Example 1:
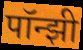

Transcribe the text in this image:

पॉन्झी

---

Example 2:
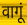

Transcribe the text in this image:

वागूं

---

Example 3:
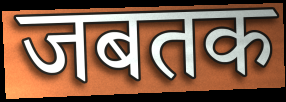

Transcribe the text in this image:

जबतक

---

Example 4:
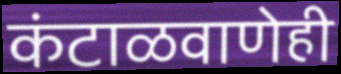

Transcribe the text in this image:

कंटाळवाणेही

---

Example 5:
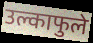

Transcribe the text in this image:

उल्काफुले